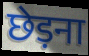
छेड़ना